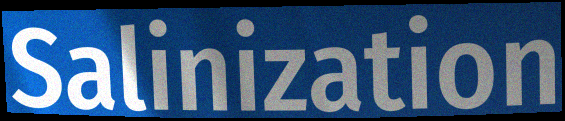
Salinization